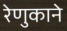
रेणुकाने